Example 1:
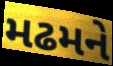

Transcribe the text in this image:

મઢમને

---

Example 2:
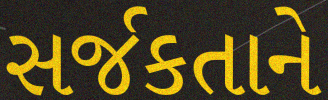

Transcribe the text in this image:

સર્જકતાને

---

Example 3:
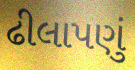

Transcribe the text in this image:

ઢીલાપણું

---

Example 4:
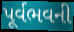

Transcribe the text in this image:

પૂર્વભવની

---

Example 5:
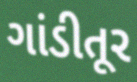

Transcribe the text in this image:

ગાંડીતૂર